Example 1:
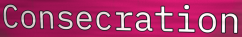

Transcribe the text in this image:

Consecration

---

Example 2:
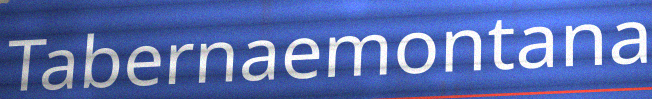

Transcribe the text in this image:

Tabernaemontana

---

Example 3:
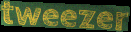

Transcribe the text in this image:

tweezer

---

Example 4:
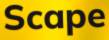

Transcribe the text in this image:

Scape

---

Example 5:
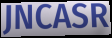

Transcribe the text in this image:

JNCASR